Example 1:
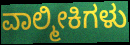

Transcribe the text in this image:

ವಾಲ್ಮೀಕಿಗಳು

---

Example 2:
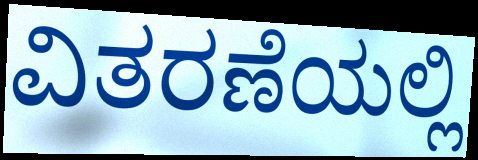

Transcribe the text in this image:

ವಿತರಣೆಯಲ್ಲಿ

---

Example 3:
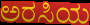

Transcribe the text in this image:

ಅರಸಿಯ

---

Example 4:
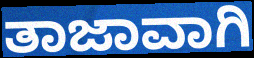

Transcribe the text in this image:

ತಾಜಾವಾಗಿ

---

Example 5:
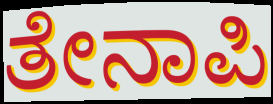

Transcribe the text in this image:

ತೇನಾಪಿ